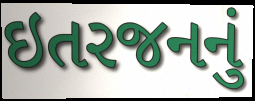
ઇતરજનનું